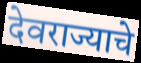
देवराज्याचे